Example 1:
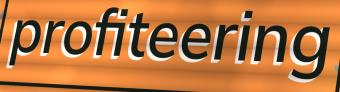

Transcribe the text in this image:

profiteering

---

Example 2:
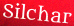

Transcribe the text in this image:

Silchar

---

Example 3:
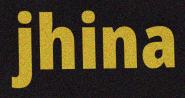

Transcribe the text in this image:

jhina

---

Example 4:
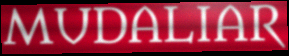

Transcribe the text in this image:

MUDALIAR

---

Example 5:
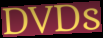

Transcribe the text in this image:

DVDs